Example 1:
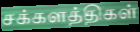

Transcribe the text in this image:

சக்களத்திகள்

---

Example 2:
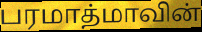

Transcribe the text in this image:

பரமாத்மாவின்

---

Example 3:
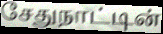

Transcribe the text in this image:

சேதுநாட்டின்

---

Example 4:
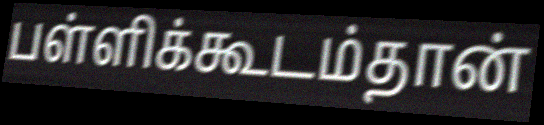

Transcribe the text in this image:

பள்ளிக்கூடம்தான்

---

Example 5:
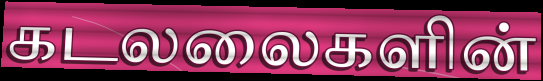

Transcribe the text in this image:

கடலலைகளின்